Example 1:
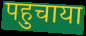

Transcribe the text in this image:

पहुचाया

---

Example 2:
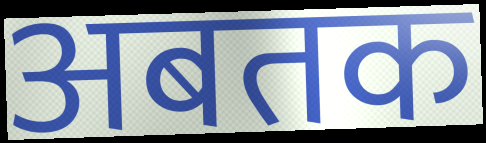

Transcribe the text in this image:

अबतक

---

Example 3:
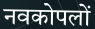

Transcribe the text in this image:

नवकोपलों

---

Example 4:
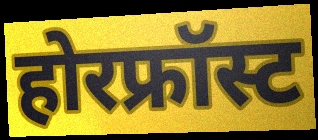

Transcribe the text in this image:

होरफ्रॉस्ट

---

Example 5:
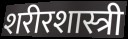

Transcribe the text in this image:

शरीरशास्त्री